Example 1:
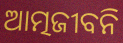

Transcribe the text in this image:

ଆତ୍ମଜୀବନି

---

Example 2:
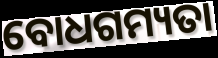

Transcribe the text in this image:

ବୋଧଗମ୍ୟତା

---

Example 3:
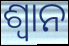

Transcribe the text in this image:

ଶ୍ଵାନ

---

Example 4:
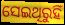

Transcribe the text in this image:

ସେଇଥିରୁହିଁ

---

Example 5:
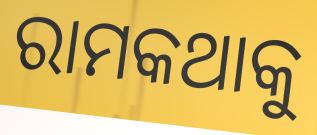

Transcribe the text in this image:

ରାମକଥାକୁ